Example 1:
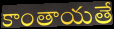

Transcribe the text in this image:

కాంతాయతే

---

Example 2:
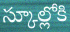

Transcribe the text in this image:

స్కూల్లోకి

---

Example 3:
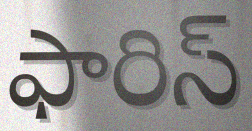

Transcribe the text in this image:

ఫారిస్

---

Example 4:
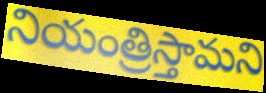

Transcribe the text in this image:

నియంత్రిస్తామని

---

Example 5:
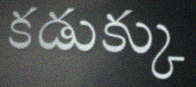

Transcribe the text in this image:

కడుక్కు